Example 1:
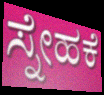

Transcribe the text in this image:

ಸ್ನೇಹಕೆ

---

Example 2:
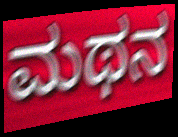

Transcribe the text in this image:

ಮಥನ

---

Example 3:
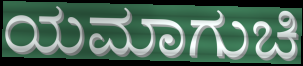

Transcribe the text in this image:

ಯಮಾಗುಚಿ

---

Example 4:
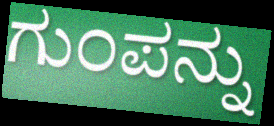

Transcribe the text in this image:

ಗುಂಪನ್ನು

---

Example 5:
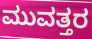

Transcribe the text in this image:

ಮುವತ್ತರ